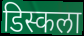
डिस्कला